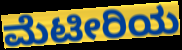
ಮೆಟೀರಿಯ